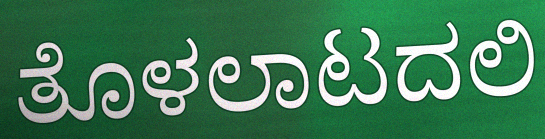
ತೊಳಲಾಟದಲಿ